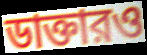
ডাক্তারও